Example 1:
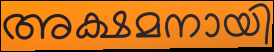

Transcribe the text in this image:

അക്ഷമനായി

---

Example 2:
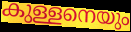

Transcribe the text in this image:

കുള്ളനെയും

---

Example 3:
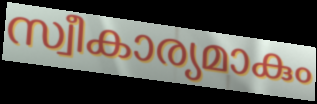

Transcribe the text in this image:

സ്വീകാര്യമാകും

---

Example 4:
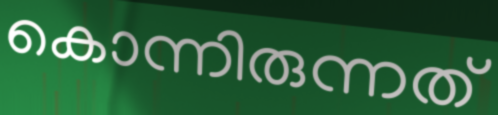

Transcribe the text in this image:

കൊന്നിരുന്നത്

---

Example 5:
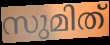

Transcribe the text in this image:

സുമിത്